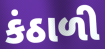
કંઠાળી